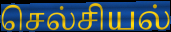
செல்சியல்